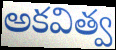
అకవిత్వ